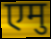
एमु